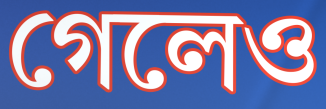
গেলেও